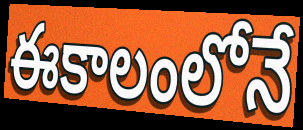
ఈకాలంలోనే